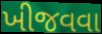
ખીજવવા